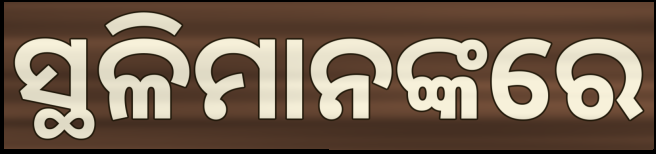
ସ୍ଥଳିମାନଙ୍କରେ